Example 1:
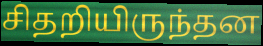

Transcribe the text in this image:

சிதறியிருந்தன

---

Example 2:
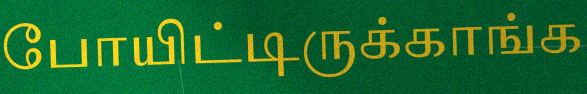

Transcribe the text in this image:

போயிட்டிருக்காங்க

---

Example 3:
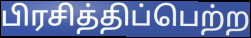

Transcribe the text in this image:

பிரசித்திப்பெற்ற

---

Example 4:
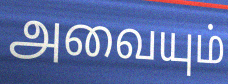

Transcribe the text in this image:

அவையும்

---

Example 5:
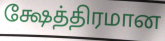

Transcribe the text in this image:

க்ஷேத்திரமான